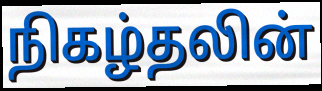
நிகழ்தலின்